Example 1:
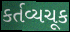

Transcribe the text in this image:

કર્તવ્યચૂક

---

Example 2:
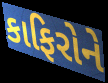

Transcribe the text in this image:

કાફિરોને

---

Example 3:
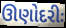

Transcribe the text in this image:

ઊણોદરીઃ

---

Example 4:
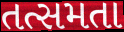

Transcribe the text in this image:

તત્સમતા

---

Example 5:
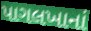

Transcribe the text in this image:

પાગલખાનાં